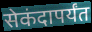
सेकंदापर्यंत